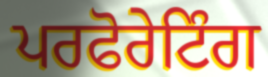
ਪਰਫੋਰੇਟਿੰਗ